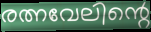
രത്നവേലിന്റെ